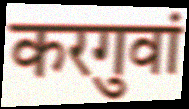
करगुवां